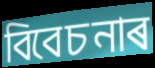
বিবেচনাৰ